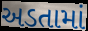
અડતામાં